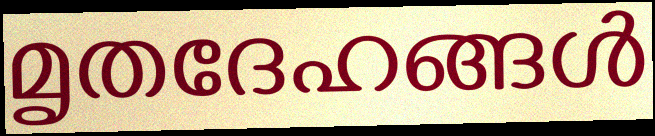
മൃതദേഹങ്ങൾ